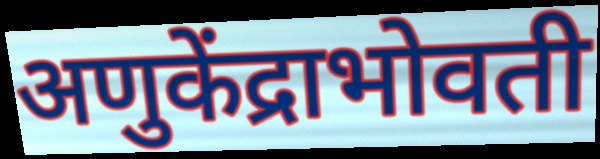
अणुकेंद्राभोवती